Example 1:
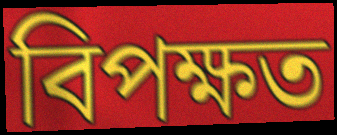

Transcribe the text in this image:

বিপক্ষত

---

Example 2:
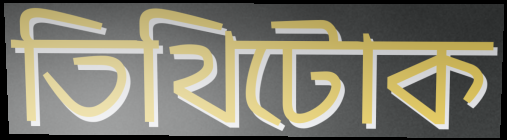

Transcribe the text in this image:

তিথিটোক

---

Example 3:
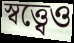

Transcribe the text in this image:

স্বত্ত্বেও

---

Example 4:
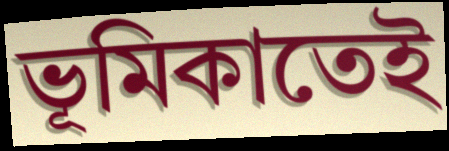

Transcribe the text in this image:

ভূমিকাতেই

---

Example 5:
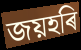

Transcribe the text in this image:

জয়হৰি